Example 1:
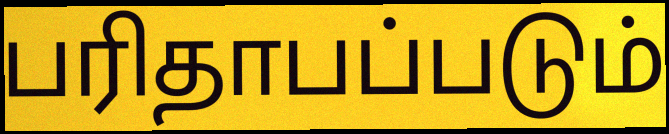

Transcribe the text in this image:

பரிதாபப்படும்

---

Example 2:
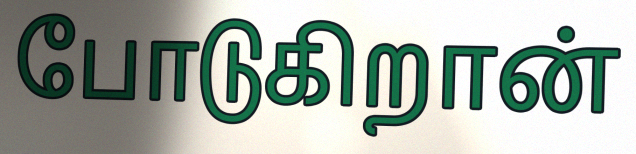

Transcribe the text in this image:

போடுகிறான்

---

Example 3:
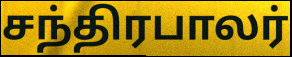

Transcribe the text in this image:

சந்திரபாலர்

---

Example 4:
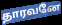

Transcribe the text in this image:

தாரவனே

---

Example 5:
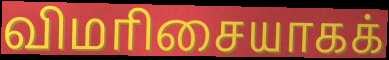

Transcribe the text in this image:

விமரிசையாகக்